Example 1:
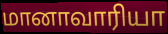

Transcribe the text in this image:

மானாவாரியா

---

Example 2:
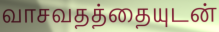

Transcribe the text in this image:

வாசவதத்தையுடன்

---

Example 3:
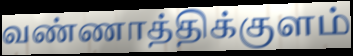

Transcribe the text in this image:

வண்ணாத்திக்குளம்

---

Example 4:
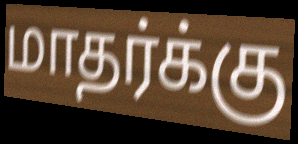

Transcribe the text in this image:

மாதர்க்கு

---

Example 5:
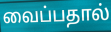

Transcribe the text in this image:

வைப்பதால்